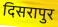
दिसरापुर